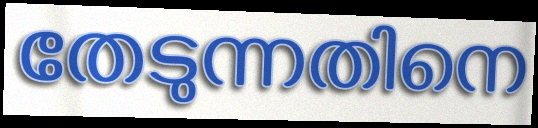
തേടുന്നതിനെ